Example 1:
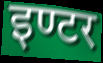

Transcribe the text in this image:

इण्टर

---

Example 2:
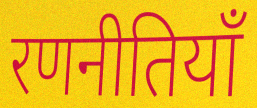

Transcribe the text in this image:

रणनीतियाँ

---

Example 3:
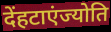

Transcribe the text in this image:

देंहटाएंज्योति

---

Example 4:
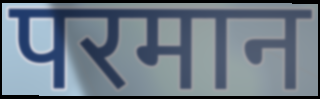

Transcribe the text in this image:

परमान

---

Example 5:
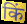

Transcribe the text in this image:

किं